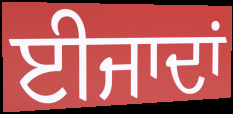
ਈਜਾਦਾਂ